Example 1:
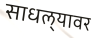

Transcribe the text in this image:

साधल्यावर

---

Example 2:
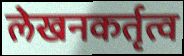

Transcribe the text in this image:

लेखनकर्तृत्व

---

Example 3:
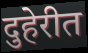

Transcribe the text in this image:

दुहेरीत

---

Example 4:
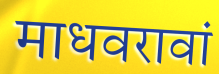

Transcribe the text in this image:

माधवरावां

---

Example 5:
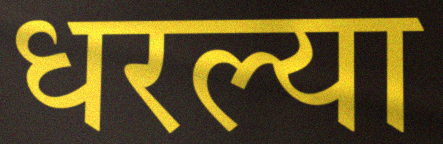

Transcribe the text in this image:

धरल्या